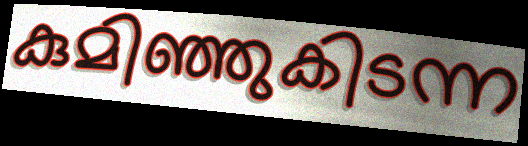
കുമിഞ്ഞുകിടന്ന